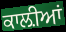
ਕਾਲ਼ੀਆਂ